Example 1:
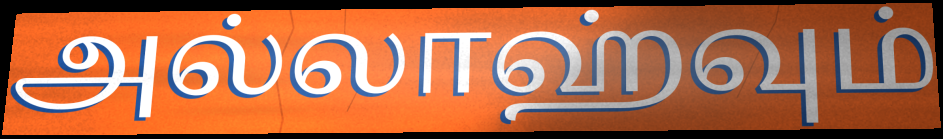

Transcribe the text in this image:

அல்லாஹ்வும்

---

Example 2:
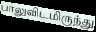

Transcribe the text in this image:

பாலுவிடமிருந்து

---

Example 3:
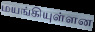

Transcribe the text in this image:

மயங்கியுள்ளன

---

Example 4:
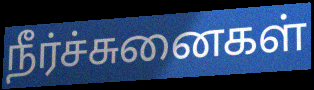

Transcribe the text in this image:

நீர்ச்சுனைகள்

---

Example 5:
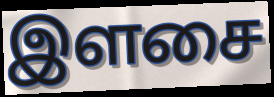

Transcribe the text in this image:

இளசை